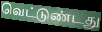
வெட்டுண்டது